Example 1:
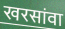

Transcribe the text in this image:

खरसांवा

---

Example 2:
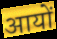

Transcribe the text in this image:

आयों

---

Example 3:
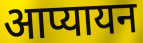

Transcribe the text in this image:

आप्यायन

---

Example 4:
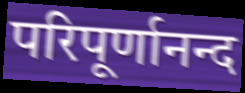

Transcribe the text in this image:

परिपूर्णानन्द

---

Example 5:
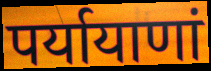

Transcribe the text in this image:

पर्यायाणां